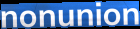
nonunion